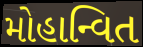
મોહાન્વિત